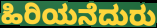
ಹಿರಿಯನೆದುರು